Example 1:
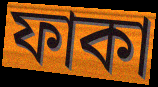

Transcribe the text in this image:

ফাকা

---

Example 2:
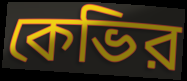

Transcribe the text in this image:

কেভির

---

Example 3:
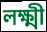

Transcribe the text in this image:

লক্ষ্মী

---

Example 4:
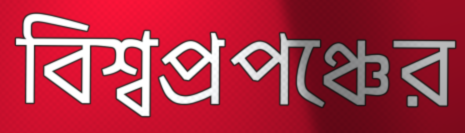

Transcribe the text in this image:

বিশ্বপ্রপঞ্চের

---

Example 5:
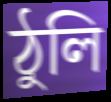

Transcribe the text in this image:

ঠুলি